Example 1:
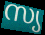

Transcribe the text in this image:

സ്യ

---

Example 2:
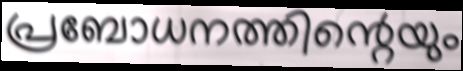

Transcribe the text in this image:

പ്രബോധനത്തിന്റെയും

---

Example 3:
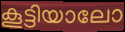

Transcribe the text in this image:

കൂട്ടിയാലോ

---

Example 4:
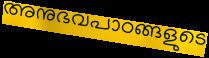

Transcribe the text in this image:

അനുഭവപാഠങ്ങളുടെ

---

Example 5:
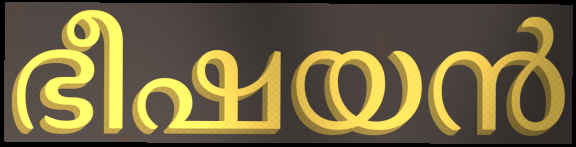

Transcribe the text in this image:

ഭീഷയൻ